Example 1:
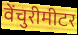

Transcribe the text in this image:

वेंचुरीमीटर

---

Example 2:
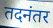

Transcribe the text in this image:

तदनंतर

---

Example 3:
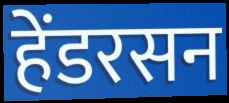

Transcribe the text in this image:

हेंडरसन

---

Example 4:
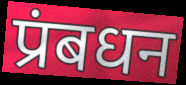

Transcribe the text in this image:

प्रंबधन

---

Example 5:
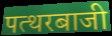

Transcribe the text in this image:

पत्थरबाजी